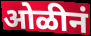
ओळीनं